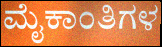
ಮೈಕಾಂತಿಗಳ